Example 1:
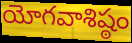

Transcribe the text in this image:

యోగవాశిష్ఠం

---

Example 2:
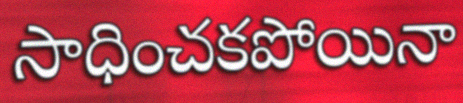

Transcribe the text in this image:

సాధించకపోయినా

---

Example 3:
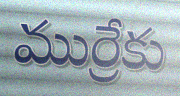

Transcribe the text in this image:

ముర్రేకు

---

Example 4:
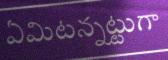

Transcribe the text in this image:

ఏమిటన్నట్టుగా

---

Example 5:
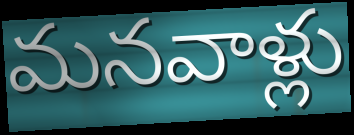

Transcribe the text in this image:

మనవాళ్లు